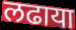
लढाया